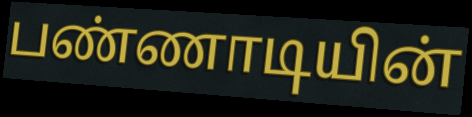
பண்ணாடியின்